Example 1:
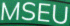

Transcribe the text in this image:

MSEU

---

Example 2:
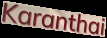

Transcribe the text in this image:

Karanthai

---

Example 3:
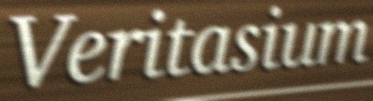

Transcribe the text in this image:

Veritasium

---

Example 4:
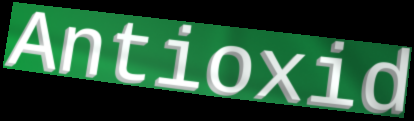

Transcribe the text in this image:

Antioxid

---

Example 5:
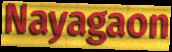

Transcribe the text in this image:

Nayagaon